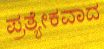
ಪ್ರತ್ಯೇಕವಾದ